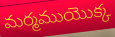
మర్మముయొక్క